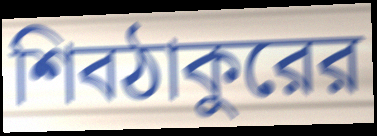
শিবঠাকুরের